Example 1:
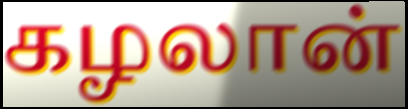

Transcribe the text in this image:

கழலான்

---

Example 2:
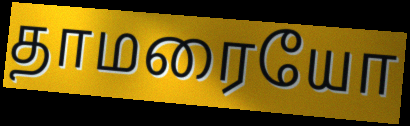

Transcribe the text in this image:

தாமரையோ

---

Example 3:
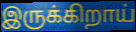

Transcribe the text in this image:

இருக்கிறாய்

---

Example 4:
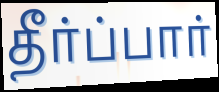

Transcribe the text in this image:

தீர்ப்பார்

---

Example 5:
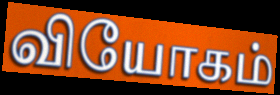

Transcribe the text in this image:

வியோகம்